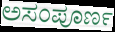
ಅಸಂಪೂರ್ಣ